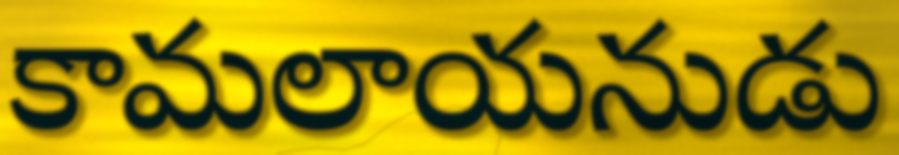
కామలాయనుడు